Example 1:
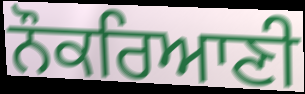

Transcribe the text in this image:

ਨੌਕਰਿਆਣੀ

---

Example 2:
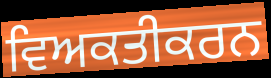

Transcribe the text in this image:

ਵਿਅਕਤੀਕਰਨ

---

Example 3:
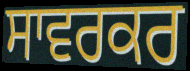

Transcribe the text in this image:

ਸਾਵਰਕਰ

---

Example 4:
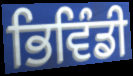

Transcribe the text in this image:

ਭਿਵਿੰਡੀ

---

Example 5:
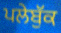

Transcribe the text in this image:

ਪਲੇਬੁੱਕ